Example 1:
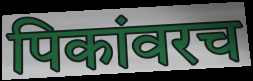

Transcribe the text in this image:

पिकांवरच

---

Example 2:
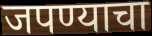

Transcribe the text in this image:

जपण्याचा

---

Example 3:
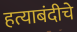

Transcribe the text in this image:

हत्याबंदीचे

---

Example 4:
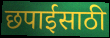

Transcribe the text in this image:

छपाईसाठी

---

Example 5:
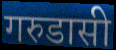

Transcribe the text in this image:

गरुडासी